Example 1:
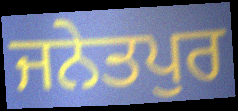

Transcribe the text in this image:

ਜਨੇਤਪੁਰ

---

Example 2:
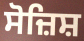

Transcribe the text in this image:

ਸੋਜ਼ਿਸ਼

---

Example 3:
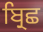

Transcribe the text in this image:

ਬ੍ਰਿਛ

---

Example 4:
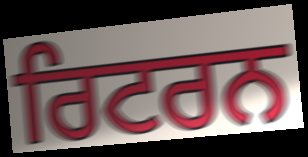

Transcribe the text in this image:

ਰਿਟਰਨ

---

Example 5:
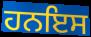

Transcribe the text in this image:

ਹਨਇਸ